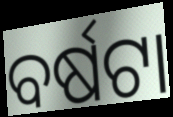
ବର୍ଷଟା